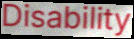
Disability